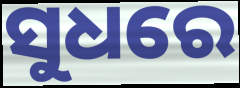
ସୁଧରେ